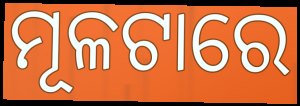
ମୂଳଟାରେ